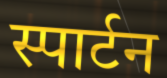
स्पार्टन